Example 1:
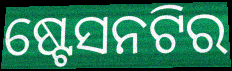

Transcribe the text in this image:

ଷ୍ଟେସନଟିର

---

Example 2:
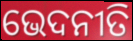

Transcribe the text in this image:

ଭେଦନୀତି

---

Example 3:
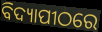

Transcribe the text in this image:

ବିଦ୍ୟାପୀଠରେ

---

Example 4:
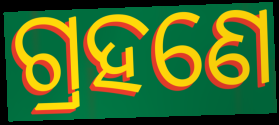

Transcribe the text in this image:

ଗ୍ରହଣେ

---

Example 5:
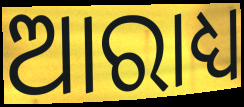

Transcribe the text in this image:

ଆରାଧ୍ୟ